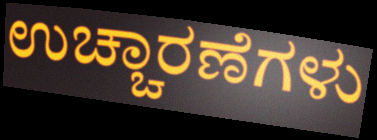
ಉಚ್ಚಾರಣೆಗಳು